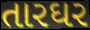
તારઘર